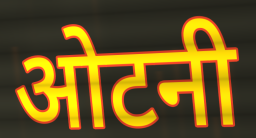
ओटनी